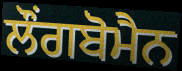
ਲੌਂਗਬੋਮੈਨ